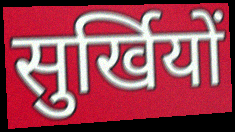
सुर्खियों